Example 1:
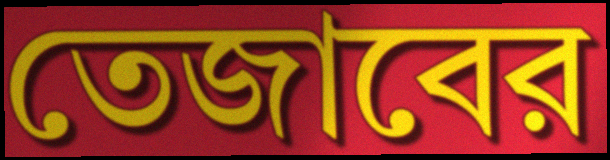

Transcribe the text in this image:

তেজাবের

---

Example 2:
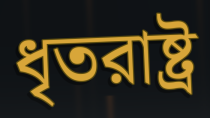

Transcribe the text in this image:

ধৃতরাষ্ট্র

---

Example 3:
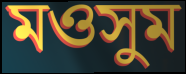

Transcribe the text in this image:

মওসুম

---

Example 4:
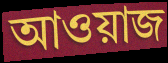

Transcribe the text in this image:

আওয়াজ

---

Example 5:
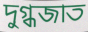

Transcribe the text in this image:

দুগ্ধজাত